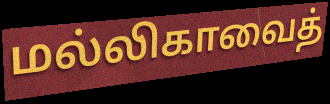
மல்லிகாவைத்